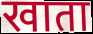
खाता